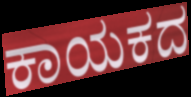
ಕಾಯಕದ